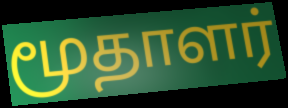
மூதாளர்